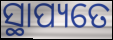
ସ୍ଥାପ୍ୟତେ